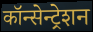
कॉन्सेन्ट्रेशन